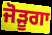
ਜੋੜੂਗਾ